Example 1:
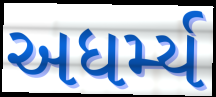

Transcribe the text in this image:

અધર્મ્ય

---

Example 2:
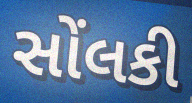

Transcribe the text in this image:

સોંલકી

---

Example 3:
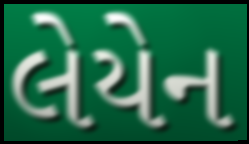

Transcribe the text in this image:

લેયેન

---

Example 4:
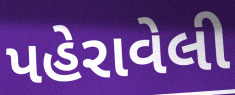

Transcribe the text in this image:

પહેરાવેલી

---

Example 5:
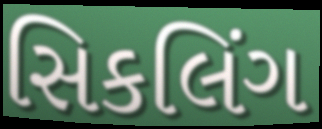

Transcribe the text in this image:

સિકલિંગ